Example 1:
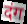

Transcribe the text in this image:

दंग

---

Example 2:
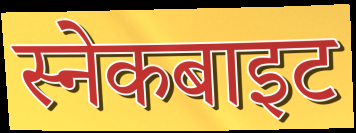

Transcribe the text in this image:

स्नेकबाइट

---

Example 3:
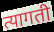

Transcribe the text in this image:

त्यागती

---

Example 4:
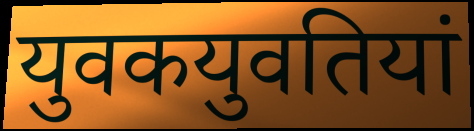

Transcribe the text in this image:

युवकयुवतियां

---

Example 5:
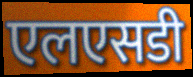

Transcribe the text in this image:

एलएसडी